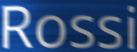
Rossi